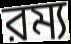
রম্য